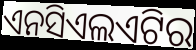
ଏନସିଏଲଏଟିର